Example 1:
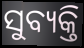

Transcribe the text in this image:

ସୁବ୍ୟକ୍ତି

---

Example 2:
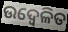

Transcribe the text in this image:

ଉଦ୍ବେଳିତ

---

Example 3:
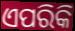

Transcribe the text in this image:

ଏପରିକି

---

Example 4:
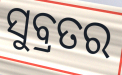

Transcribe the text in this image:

ସୁବ୍ରତର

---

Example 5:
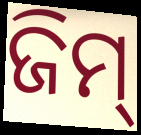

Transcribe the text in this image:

ଜିମ୍